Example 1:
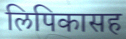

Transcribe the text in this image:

लिपिकासह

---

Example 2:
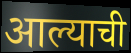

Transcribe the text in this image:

आल्याची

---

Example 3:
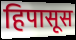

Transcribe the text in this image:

हिपासूस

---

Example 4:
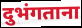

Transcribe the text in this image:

दुभंगताना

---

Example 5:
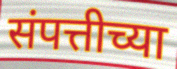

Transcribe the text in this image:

संपत्तीच्या